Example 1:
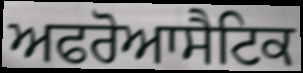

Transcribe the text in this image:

ਅਫਰੋਆਸੈਟਿਕ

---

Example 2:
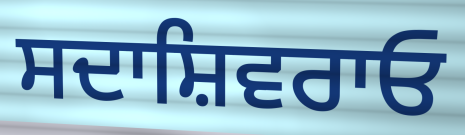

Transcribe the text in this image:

ਸਦਾਸ਼ਿਵਰਾਓ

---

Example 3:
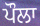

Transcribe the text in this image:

ਪੌਲਾ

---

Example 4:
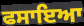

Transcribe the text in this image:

ਫਸਾਇਆ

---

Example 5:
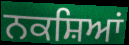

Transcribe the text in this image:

ਨਕਸ਼ਿਆਂ